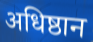
अधिष्ठान